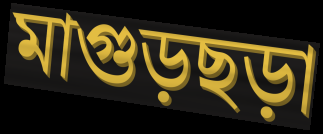
মাগুড়ছড়া